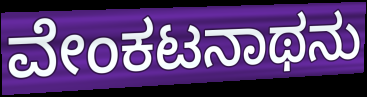
ವೇಂಕಟನಾಥನು